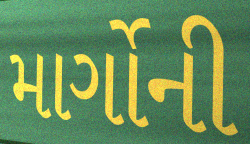
માર્ગોની